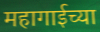
महागाईच्या